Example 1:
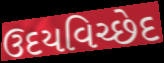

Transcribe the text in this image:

ઉદયવિચ્છેદ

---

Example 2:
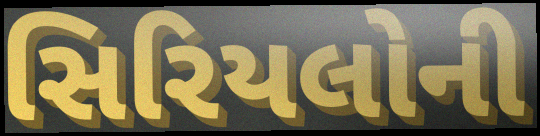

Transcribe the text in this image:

સિરિયલોની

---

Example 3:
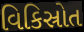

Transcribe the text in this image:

વિકિસ્રોત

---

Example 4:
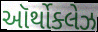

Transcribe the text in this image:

ઑર્થોક્લેઝ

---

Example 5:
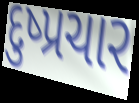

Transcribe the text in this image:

દુષ્પ્રચાર